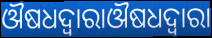
ଔଷଧଦ୍ଵାରାଔଷଧଦ୍ବାରା